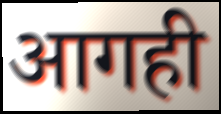
आगही